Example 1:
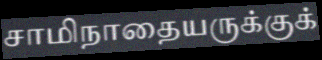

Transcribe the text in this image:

சாமிநாதையருக்குக்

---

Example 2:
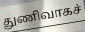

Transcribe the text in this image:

துணிவாகச்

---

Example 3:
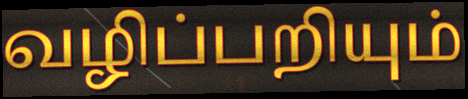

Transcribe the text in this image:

வழிப்பறியும்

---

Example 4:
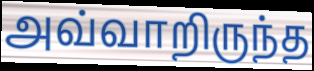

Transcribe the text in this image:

அவ்வாறிருந்த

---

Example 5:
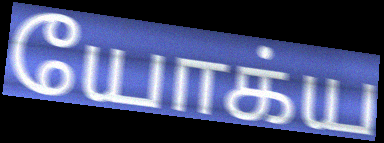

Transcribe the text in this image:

யோக்ய